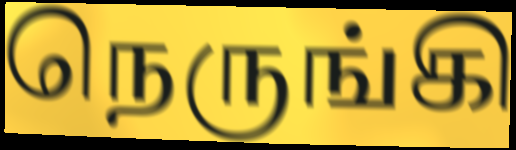
நெருங்கி